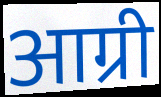
आग्री